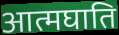
आत्मघाति